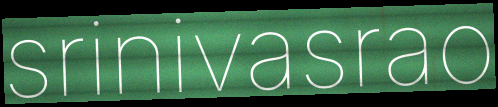
srinivasrao